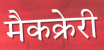
मैकक्रेरी